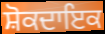
ਸ਼ੋਕਦਾਇਕ